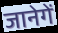
जानेगें